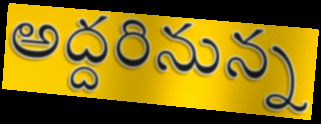
అద్దరినున్న